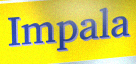
Impala